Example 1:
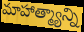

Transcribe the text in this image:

మాహాత్మ్యాన్ని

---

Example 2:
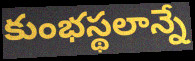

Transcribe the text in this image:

కుంభస్థలాన్నే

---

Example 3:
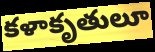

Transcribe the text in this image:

కళాకృతులూ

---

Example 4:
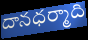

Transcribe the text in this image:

దానధర్మాది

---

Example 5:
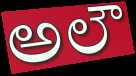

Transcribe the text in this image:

అలౌ